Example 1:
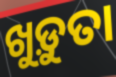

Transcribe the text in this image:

ଖୁଡ଼ୁତା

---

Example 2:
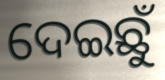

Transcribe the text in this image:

ଦେଇଛୁଁ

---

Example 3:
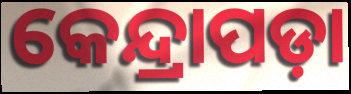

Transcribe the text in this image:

କେନ୍ଦ୍ରାପଡ଼ା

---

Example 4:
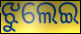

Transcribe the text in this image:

ଝୁଲେଇ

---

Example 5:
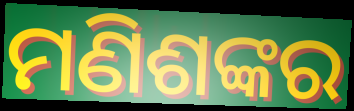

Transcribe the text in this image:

ମଣିଶଙ୍କର